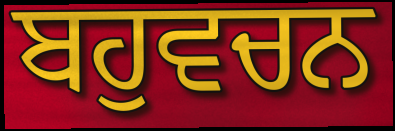
ਬਹੁਵਚਨ